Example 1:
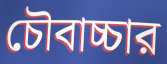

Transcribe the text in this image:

চৌবাচ্চার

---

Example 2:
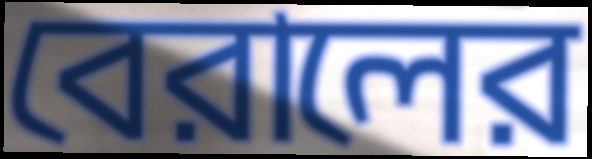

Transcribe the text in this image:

বেরালের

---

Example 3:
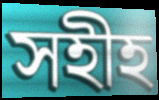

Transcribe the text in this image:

সহীহ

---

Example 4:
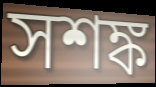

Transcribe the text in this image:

সশঙ্ক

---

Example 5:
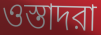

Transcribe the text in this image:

ওস্তাদরা